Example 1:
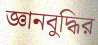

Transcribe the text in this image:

জ্ঞানবুদ্ধির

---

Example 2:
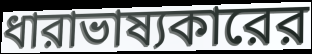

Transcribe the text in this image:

ধারাভাষ্যকারের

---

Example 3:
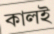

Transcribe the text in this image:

কালই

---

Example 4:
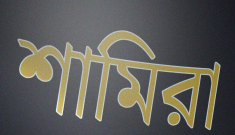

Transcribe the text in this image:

শামিরা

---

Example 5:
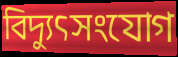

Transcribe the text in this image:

বিদ্যুৎসংযোগ